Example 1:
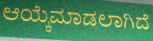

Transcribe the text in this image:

ಆಯ್ಕೆಮಾಡಲಾಗಿದೆ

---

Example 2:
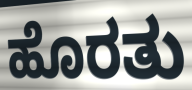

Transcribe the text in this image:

ಹೊರತು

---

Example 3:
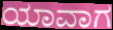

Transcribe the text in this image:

ಯಾವಾಗ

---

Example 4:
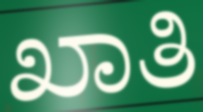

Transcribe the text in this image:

ಖಾತಿ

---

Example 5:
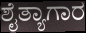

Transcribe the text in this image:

ಶೈತ್ಯಾಗಾರ